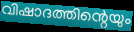
വിഷാദത്തിന്റെയും